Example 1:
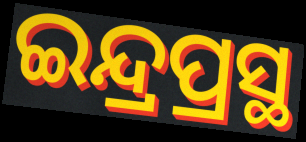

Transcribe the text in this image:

ଇନ୍ଦ୍ରପ୍ରସ୍ଥ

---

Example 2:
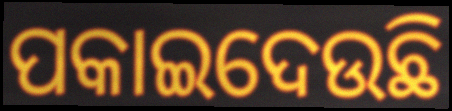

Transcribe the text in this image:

ପକାଇଦେଉଛି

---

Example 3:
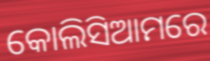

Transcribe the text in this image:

କୋଲିସିଆମରେ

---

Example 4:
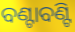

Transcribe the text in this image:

ବଣ୍ଟାବଣ୍ଟି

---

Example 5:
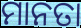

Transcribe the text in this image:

ମାନତା